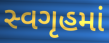
સ્વગૃહમાં